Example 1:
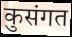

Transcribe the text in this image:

कुसंगत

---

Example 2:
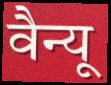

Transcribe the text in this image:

वैन्यू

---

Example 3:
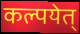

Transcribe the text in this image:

कल्पयेत्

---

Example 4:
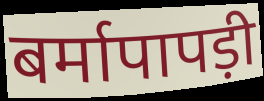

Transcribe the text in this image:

बर्मापापड़ी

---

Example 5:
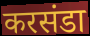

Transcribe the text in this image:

करसंडा